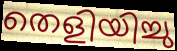
തെളിയിച്ചു